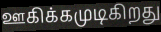
ஊகிக்கமுடிகிறது